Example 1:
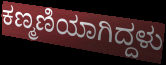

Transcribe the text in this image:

ಕಣ್ಮಣಿಯಾಗಿದ್ದಳು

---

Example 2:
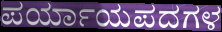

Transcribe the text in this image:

ಪರ್ಯಾಯಪದಗಳ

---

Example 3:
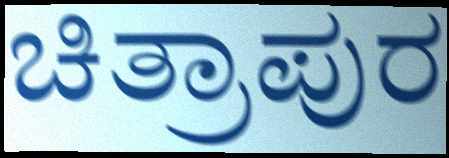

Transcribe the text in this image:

ಚಿತ್ರಾಪುರ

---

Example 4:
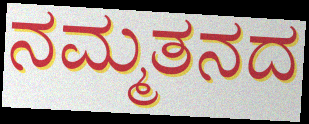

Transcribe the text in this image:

ನಮ್ಮತನದ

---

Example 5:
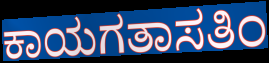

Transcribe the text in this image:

ಕಾಯಗತಾಸತಿಂ